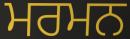
ਮਰਮਨ